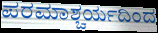
ಪರಮಾಶ್ಚರ್ಯದಿಂದ